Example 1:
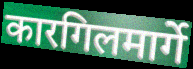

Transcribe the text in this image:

कारगिलमार्गे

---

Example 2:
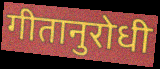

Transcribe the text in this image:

गीतानुरोधी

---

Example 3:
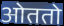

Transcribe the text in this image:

ओततो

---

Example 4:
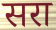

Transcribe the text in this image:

सरा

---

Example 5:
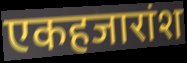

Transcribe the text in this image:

एकहजारांश